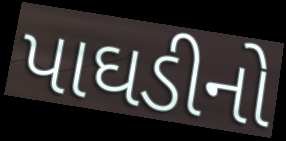
પાઘડીનો